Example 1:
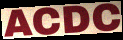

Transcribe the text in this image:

ACDC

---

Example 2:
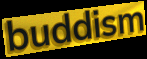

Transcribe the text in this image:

buddism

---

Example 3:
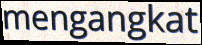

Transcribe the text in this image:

mengangkat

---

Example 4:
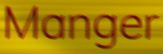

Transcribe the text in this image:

Manger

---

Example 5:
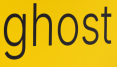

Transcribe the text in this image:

ghost